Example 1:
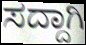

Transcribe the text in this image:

ಸದ್ದಾಗಿ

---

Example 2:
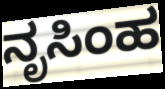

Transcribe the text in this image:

ನೃಸಿಂಹ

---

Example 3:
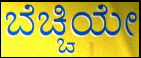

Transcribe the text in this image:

ಬೆಚ್ಚಿಯೇ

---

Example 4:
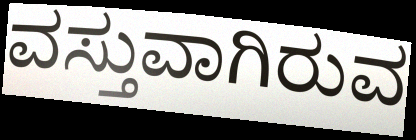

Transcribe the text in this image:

ವಸ್ತುವಾಗಿರುವ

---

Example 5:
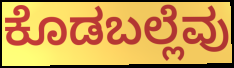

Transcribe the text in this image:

ಕೊಡಬಲ್ಲೆವು